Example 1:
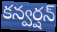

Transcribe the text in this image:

కన్వర్షన్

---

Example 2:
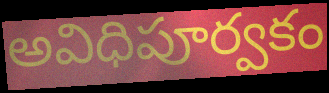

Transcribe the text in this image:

అవిధిపూర్వకం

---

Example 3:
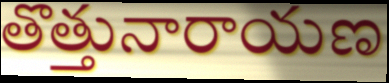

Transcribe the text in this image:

తొత్తునారాయణ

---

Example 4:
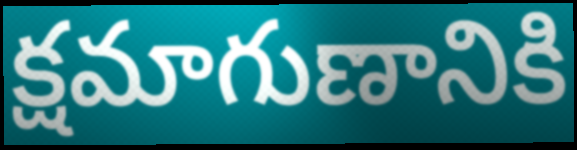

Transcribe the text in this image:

క్షమాగుణానికి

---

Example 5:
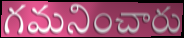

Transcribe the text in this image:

గమనించారు